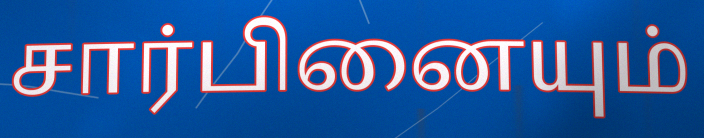
சார்பினையும்